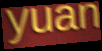
yuan